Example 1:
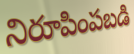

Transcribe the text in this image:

నిరూపింపబడి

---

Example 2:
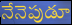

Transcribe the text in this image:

నేనెపుడూ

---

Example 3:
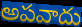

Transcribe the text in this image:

అపవాదు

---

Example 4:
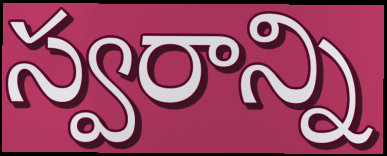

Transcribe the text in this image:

స్వరాన్ని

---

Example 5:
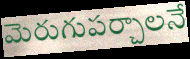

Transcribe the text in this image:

మెరుగుపర్చాలనే